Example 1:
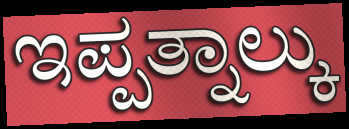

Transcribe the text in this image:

ಇಪ್ಪತ್ನಾಲ್ಕು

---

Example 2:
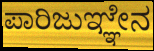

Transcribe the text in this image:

ಪಾರಿಜುಞ್ಞೇನ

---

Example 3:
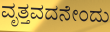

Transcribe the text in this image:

ವೃತ್ತವದನೇಂದು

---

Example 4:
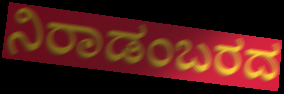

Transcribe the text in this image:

ನಿರಾಡಂಬರದ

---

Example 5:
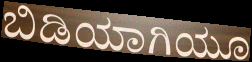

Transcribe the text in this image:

ಬಿಡಿಯಾಗಿಯೂ